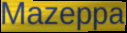
Mazeppa